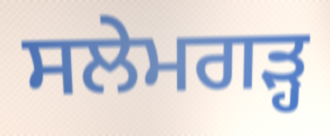
ਸਲੇਮਗੜ੍ਹ